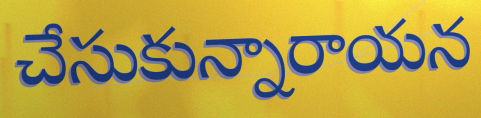
చేసుకున్నారాయన